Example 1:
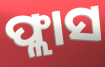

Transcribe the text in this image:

ଫ୍ଲାସ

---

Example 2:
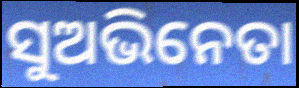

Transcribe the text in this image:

ସୁଅଭିନେତା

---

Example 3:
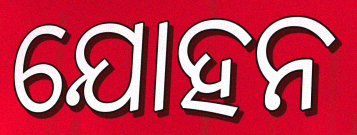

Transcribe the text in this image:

ଯୋହନ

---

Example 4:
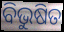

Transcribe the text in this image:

ବିଭୁଷିତ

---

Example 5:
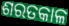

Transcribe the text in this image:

ଶରତକାଳ